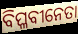
ବିପ୍ଳବୀନେତା